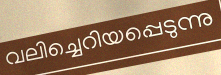
വലിച്ചെറിയപ്പെടുന്നു